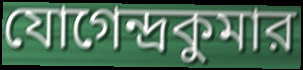
যোগেন্দ্রকুমার